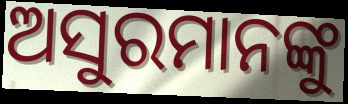
ଅସୁରମାନଙ୍କୁ